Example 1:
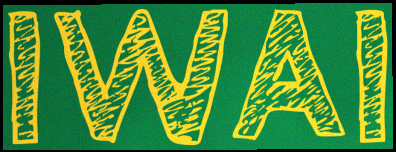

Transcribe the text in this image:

IWAI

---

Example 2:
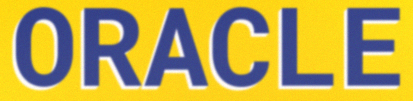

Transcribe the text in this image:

ORACLE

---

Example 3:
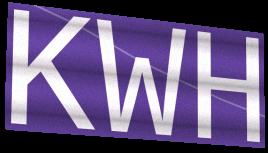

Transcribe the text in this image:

KWH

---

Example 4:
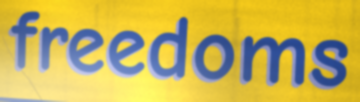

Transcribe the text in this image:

freedoms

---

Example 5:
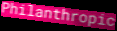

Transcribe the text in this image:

Philanthropic